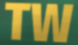
TW